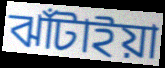
ঝাঁটাইয়া